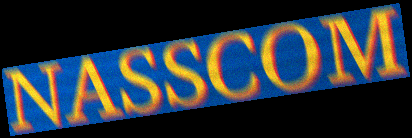
NASSCOM